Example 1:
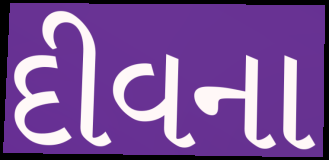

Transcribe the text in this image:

દીવના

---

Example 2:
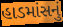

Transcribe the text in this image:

હાડમાંસનું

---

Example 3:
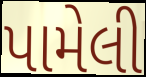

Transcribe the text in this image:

પામેલી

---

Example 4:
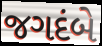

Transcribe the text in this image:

જગદંબે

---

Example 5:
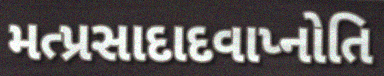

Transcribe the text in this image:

મત્પ્રસાદાદવાપ્નોતિ